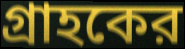
গ্রাহকের